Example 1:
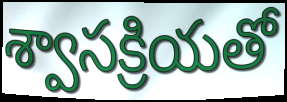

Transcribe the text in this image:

శ్వాసక్రియతో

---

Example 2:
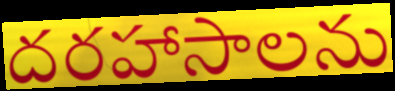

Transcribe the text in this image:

దరహాసాలను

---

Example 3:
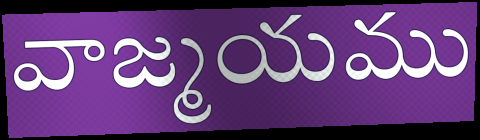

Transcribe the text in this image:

వాజ్మయము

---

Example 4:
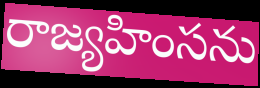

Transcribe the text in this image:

రాజ్యహింసను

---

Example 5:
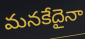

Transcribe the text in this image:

మనకేదైనా